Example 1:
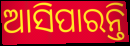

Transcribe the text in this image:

ଆସିପାରନ୍ତି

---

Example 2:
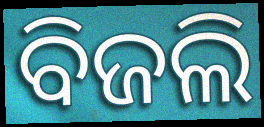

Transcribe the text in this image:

ବିଜଲି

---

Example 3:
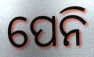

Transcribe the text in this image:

ପେନି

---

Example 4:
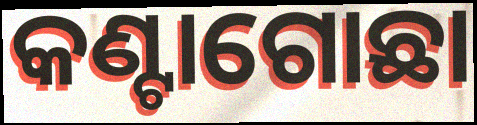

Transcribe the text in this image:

କଣ୍ଟାଗୋଛା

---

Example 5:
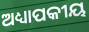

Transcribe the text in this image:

ଅଧ୍ୟାପକୀୟ